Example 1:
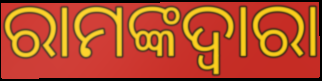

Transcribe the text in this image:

ରାମଙ୍କଦ୍ଵାରା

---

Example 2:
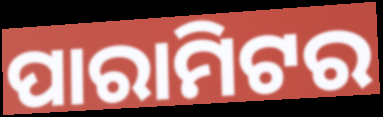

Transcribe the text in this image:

ପାରାମିଟର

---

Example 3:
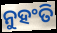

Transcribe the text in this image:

ନୁହଂତି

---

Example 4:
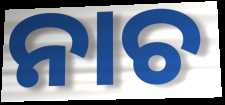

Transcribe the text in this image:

ନାଚ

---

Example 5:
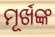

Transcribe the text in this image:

ମୂର୍ଖଙ୍କ